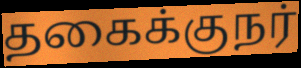
தகைக்குநர்